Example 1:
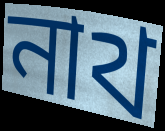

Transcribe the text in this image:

নাথ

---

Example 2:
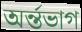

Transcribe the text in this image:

অৰ্ন্তভাগ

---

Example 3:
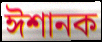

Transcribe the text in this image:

ঈশানক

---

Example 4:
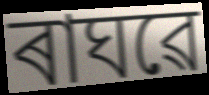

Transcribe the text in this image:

ৰাঘৱে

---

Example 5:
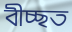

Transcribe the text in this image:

বীচ্ছত